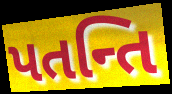
પતન્તિ